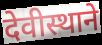
देवीस्थाने